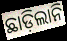
ଛାଡ଼ିଲାନି